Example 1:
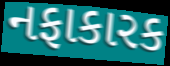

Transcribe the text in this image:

નફાકારક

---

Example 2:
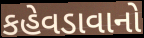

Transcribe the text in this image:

કહેવડાવાનો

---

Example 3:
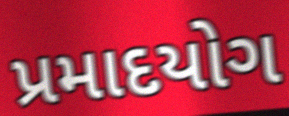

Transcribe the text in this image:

પ્રમાદયોગ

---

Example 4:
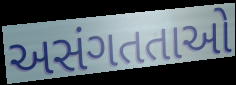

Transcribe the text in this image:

અસંગતતાઓ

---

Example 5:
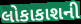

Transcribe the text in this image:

લોકાકાશની